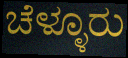
ಚೆಳ್ಳೂರು